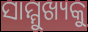
ସାମ୍ମୁଖ୍ୟକୁ